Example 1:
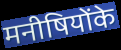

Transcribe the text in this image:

मनीषियोंके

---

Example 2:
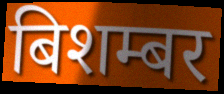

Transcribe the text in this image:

बिशम्बर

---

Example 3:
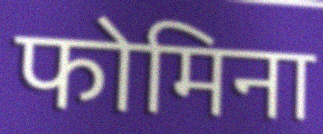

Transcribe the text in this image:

फोमिना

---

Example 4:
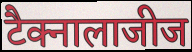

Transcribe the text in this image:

टैक्नालाजीज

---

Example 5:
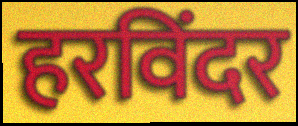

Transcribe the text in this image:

हरविंदर